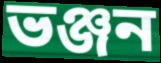
ভঞ্জন